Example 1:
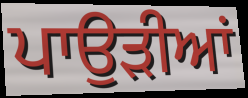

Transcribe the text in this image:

ਪਾਉੜੀਆਂ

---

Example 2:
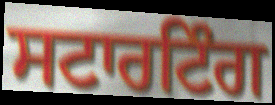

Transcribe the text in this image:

ਸਟਾਰਟਿੰਗ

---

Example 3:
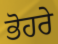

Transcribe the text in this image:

ਭੋਹਰੇ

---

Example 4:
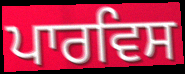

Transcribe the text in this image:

ਪਾਰਵਿਸ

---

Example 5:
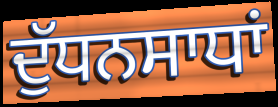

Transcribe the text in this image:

ਦੁੱਧਨਸਾਧਾਂ